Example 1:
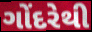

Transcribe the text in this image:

ગોંદરેથી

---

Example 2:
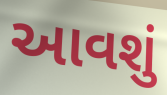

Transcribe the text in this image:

આવશું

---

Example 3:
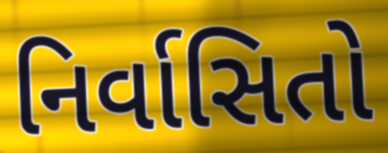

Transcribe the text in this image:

નિર્વાસિતો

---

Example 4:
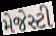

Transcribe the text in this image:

મેજેસ્ટી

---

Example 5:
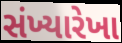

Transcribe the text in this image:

સંખ્યારેખા